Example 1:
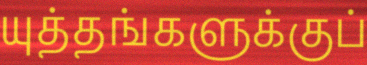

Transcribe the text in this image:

யுத்தங்களுக்குப்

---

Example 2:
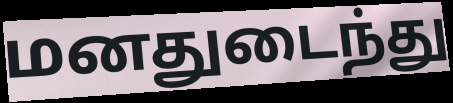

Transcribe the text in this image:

மனதுடைந்து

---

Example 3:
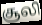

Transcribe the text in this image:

சூலி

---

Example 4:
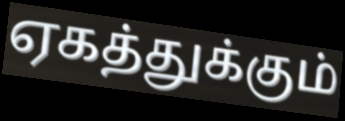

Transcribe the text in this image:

ஏகத்துக்கும்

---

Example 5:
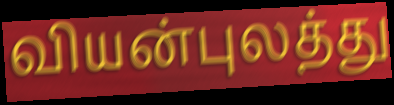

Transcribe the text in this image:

வியன்புலத்து